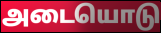
அடையொடு